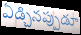
ఏడ్చినప్పుడూ